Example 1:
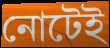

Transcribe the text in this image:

নোটেই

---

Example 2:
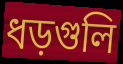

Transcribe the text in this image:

ধড়গুলি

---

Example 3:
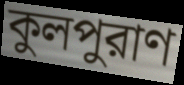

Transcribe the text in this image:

কুলপুরাণ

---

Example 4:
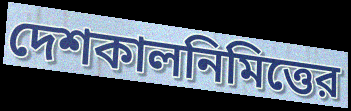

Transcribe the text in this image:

দেশকালনিমিত্তের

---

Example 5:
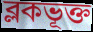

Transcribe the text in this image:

ব্লকভূক্ত